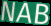
NAB